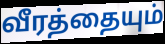
வீரத்தையும்